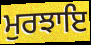
ਮੁਰਝਾਇ